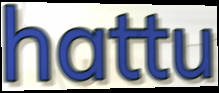
hattu